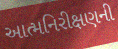
આત્મનિરીક્ષણની